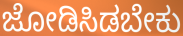
ಜೋಡಿಸಿಡಬೇಕು